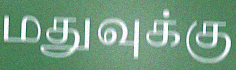
மதுவுக்கு